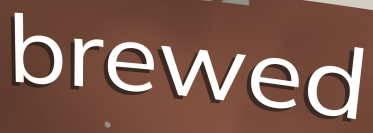
brewed